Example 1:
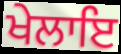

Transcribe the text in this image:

ਖੇਲਾਇ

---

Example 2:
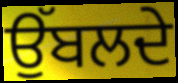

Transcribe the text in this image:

ਉੱਬਲਦੇ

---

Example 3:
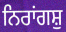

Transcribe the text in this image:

ਨਿਰਾਂਗਸ਼ੁ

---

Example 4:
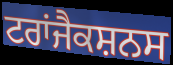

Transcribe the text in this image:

ਟਰਾਂਜੈਕਸ਼ਨਸ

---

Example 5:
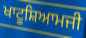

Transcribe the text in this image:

ਖਾਟੂਸ਼ਿਆਮਜੀ